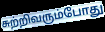
சுற்றிவரும்போது